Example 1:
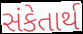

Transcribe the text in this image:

સંકેતાર્થ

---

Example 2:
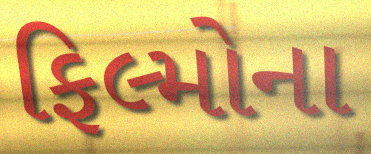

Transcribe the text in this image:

ફિલ્મોના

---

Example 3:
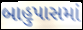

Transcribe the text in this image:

બાહુપાસમાં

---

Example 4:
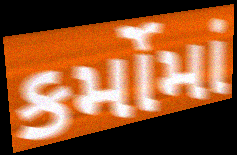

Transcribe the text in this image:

કર્મોમાં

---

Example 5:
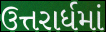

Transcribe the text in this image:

ઉત્તરાર્ધમાં